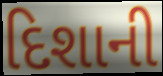
દિશાની